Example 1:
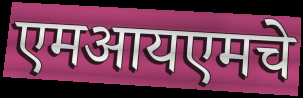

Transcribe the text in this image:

एमआयएमचे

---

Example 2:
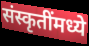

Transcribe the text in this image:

संस्कृतींमध्ये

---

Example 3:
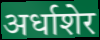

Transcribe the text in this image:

अर्धाशेर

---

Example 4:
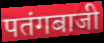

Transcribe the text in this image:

पतंगबाजी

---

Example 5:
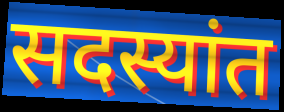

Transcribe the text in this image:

सदस्यांत